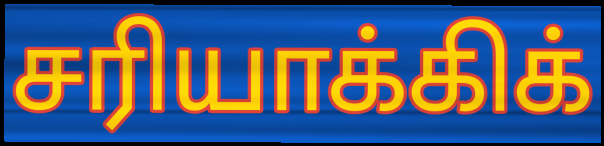
சரியாக்கிக்